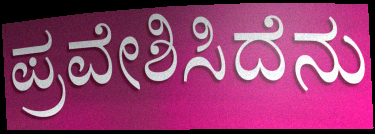
ಪ್ರವೇಶಿಸಿದೆನು